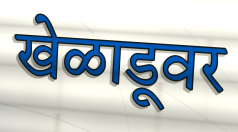
खेळाडूवर